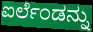
ಐರ್ಲೆಂಡನ್ನು